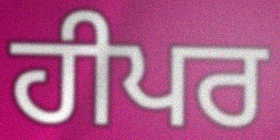
ਹੀਪਰ